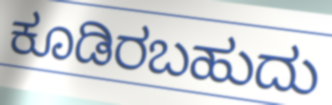
ಕೂಡಿರಬಹುದು